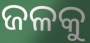
ଜଳକୁ